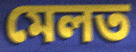
মেলত